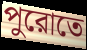
পুরোতে